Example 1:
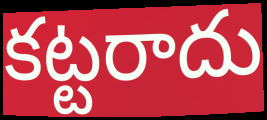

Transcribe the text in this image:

కట్టరాదు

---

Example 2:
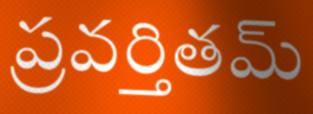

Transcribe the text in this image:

ప్రవర్తితమ్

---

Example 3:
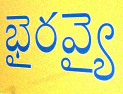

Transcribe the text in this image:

భైరవ్యై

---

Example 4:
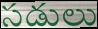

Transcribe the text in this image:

సడులు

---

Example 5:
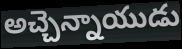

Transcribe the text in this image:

అచ్చెన్నాయుడు